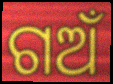
ଗଅଁ